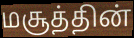
மசூத்தின்